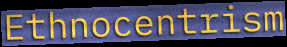
Ethnocentrism